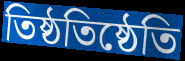
তিষ্ঠতিষ্ঠেতি